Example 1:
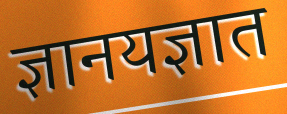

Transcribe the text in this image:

ज्ञानयज्ञात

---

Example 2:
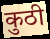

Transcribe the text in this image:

कुठी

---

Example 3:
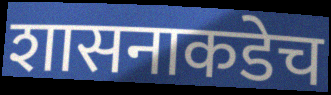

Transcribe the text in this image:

शासनाकडेच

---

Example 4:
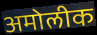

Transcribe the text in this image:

अमोलीक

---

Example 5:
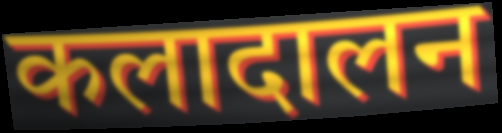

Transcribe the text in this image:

कलादालन